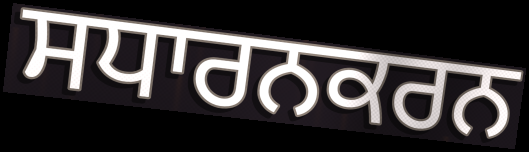
ਸਧਾਰਨਕਰਨ